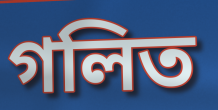
গলিত